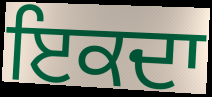
ਇਕਦਾ